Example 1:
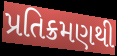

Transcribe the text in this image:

પ્રતિક્રમણથી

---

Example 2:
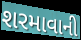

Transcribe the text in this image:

શરમાવાની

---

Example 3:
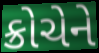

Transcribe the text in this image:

ક્રોચેને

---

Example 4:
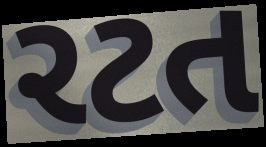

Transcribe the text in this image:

રટત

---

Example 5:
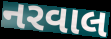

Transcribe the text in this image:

નરવાલ